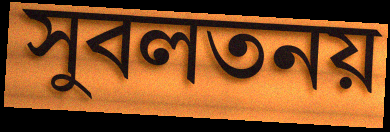
সুবলতনয়